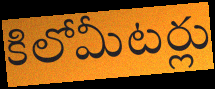
కిలోమీటర్లు